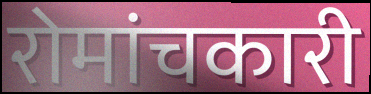
रोमांचकारी